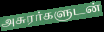
அசுரர்களுடன்